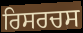
ਰਿਸਰਚਸ